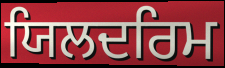
ਯਿਲਦਰਿਮ